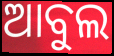
ଆବୁଲ